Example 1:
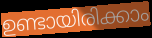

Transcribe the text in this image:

ഉണ്ടായിരിക്കാം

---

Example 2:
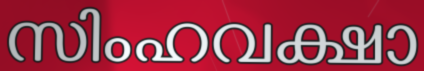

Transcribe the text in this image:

സിംഹവക്ഷാ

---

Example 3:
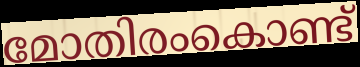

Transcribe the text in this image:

മോതിരംകൊണ്ട്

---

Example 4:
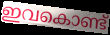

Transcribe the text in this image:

ഇവകൊണ്ട്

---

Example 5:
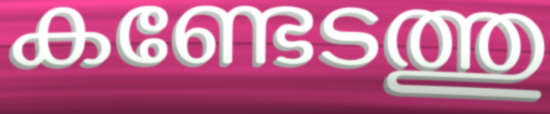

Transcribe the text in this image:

കണ്ടേടത്തു